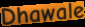
Dhawale